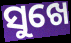
ସୁଖେ